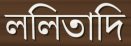
ললিতাদি